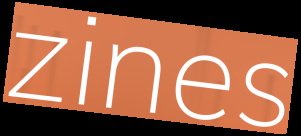
zines